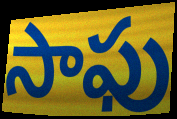
సాఫు